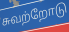
சுவற்றோடு